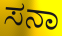
ಸನಾ